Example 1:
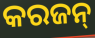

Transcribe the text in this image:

କରଜନ୍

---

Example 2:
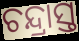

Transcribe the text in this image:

ଚନ୍ଦ୍ରାସ୍ତ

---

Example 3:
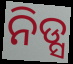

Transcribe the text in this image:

ନିଡ୍ସ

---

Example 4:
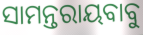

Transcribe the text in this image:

ସାମନ୍ତରାୟବାବୁ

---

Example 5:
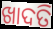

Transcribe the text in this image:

ଖାଦତି